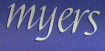
myers